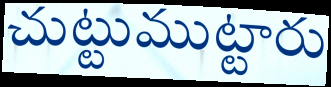
చుట్టుముట్టారు